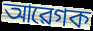
আৱেগক